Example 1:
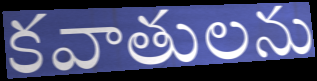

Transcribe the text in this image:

కవాతులను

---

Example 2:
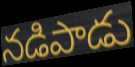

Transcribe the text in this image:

నడిపాడు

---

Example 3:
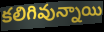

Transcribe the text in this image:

కలిగివున్నాయి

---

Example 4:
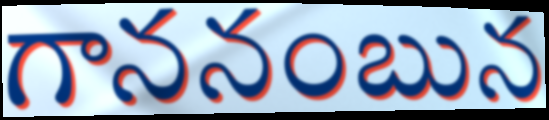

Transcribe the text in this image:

గాననంబున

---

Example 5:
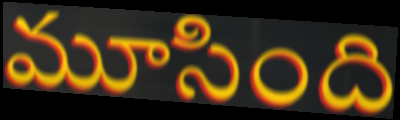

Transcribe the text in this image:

మూసింది